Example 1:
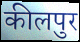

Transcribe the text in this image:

कीलपुर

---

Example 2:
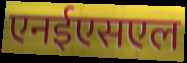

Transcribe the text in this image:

एनईएसएल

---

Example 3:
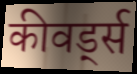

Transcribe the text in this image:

कीवर्ड्स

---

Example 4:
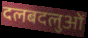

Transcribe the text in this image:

दलबदलुओं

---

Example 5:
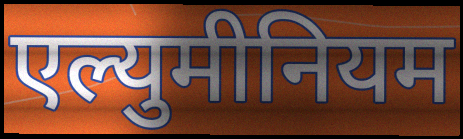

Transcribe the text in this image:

एल्युमीनियम